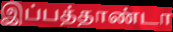
இப்பத்தாண்டா